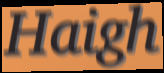
Haigh